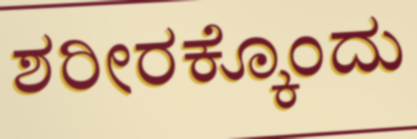
ಶರೀರಕ್ಕೊಂದು